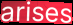
arises